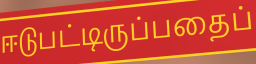
ஈடுபட்டிருப்பதைப்